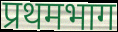
प्रथमभाग